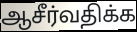
ஆசீர்வதிக்க